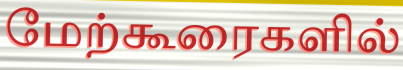
மேற்கூரைகளில்